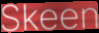
Skeen